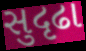
સુદૃઢા